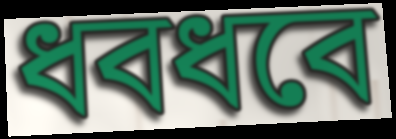
ধবধবে